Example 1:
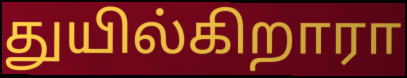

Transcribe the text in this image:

துயில்கிறாரா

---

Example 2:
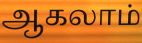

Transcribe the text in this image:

ஆகலாம்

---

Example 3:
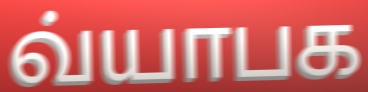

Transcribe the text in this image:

வ்யாபக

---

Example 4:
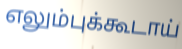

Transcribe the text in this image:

எலும்புக்கூடாய்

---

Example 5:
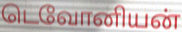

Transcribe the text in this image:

டெவோனியன்